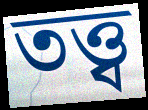
তত্ত্ব